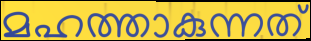
മഹത്താകുന്നത്